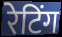
रेटिंग